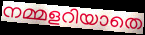
നമ്മളറിയാതെ